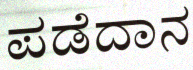
ಪಡೆದಾನ